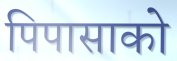
पिपासाको